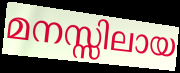
മനസ്സിലായ